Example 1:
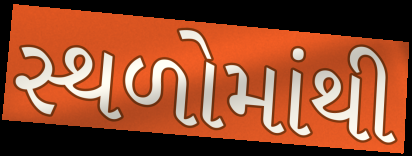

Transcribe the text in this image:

સ્થળોમાંથી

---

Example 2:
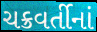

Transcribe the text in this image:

ચક્રવર્તીનાં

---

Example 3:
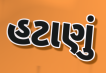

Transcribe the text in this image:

હટાણું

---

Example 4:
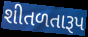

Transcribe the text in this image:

શીતળતારૂપ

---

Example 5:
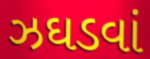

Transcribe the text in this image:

ઝઘડવાં